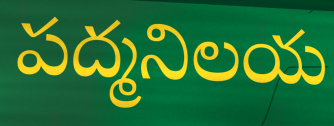
పద్మనిలయ